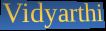
Vidyarthi